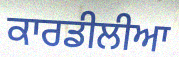
ਕਾਰਡੀਲੀਆ